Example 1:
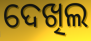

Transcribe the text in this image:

ଦେଖିଲ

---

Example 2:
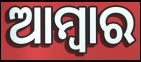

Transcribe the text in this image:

ଆମ୍ବାର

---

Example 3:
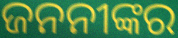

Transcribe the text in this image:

ଜନନୀଙ୍କର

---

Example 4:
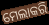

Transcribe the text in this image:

ମେଲାକରି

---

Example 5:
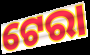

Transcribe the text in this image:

ଟେରା